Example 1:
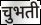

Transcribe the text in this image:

चुभती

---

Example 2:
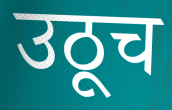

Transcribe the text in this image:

उठूच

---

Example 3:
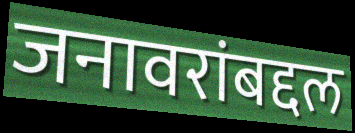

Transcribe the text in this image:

जनावरांबद्दल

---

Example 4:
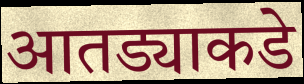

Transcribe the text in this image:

आतड्याकडे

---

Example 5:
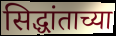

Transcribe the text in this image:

सिद्धांताच्या